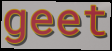
geet